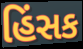
હિંસક